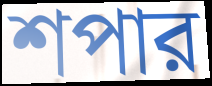
শপার